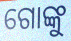
ଗୋଙ୍କୁ